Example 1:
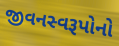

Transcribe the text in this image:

જીવનસ્વરૂપોનો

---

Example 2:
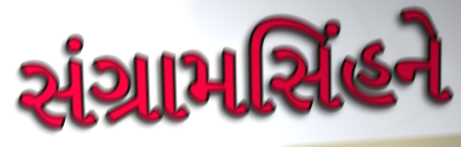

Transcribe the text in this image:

સંગ્રામસિંહને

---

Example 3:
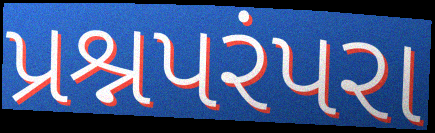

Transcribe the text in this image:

પ્રશ્નપરંપરા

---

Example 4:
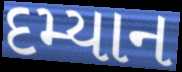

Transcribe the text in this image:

દમ્યાન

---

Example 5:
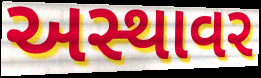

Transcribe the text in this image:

અસ્થાવર